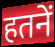
हतनें